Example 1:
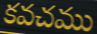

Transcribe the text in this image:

కవచము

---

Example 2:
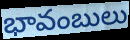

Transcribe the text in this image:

భావంబులు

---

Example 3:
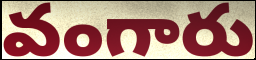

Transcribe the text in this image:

వంగారు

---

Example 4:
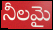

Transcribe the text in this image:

నీలమై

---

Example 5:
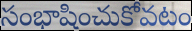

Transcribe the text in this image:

సంభాషించుకోవటం